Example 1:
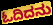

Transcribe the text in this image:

ಓದಿದನು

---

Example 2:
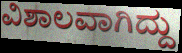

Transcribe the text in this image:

ವಿಶಾಲವಾಗಿದ್ದು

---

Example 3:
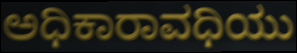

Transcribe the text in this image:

ಅಧಿಕಾರಾವಧಿಯು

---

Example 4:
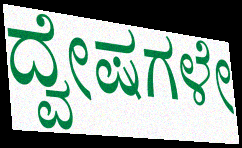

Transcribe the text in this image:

ದ್ವೇಷಗಳೇ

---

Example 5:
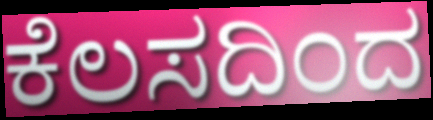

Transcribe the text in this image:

ಕೆಲಸದಿಂದ